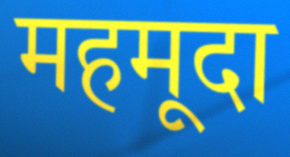
महमूदा